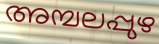
അമ്പലപ്പുഴ